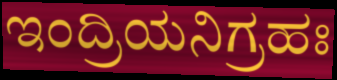
ಇಂದ್ರಿಯನಿಗ್ರಹಃ